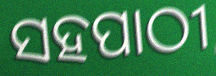
ସହପାଠୀ